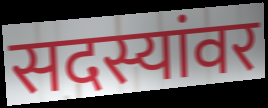
सदस्यांवर